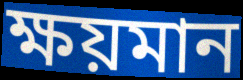
ক্ষয়মান